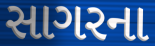
સાગરના